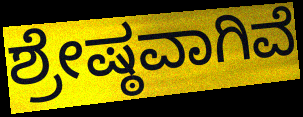
ಶ್ರೇಷ್ಠವಾಗಿವೆ